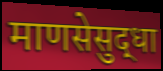
माणसेसुद्धा